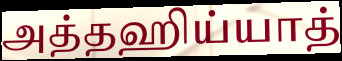
அத்தஹிய்யாத்